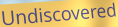
Undiscovered